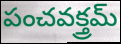
పంచవక్త్రమ్